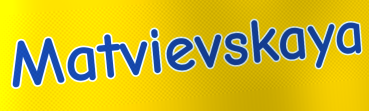
Matvievskaya